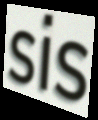
sis